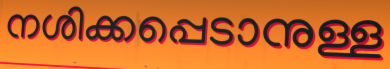
നശിക്കപ്പെടാനുള്ള